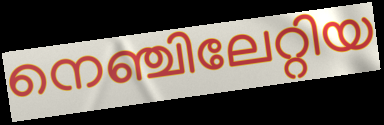
നെഞ്ചിലേറ്റിയ